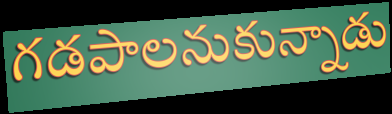
గడపాలనుకున్నాడు